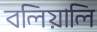
বলিয়ালি